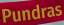
Pundras